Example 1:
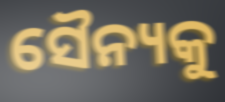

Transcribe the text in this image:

ସୈନ୍ୟକୁ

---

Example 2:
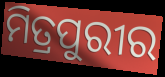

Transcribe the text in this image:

ମିତ୍ରପୁରୀର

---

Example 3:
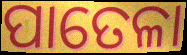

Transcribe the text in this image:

ପାତେଳା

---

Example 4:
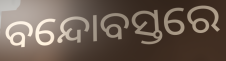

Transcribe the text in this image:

ବନ୍ଦୋବସ୍ତରେ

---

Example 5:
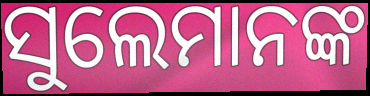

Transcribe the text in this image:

ସୁଲେମାନଙ୍କ